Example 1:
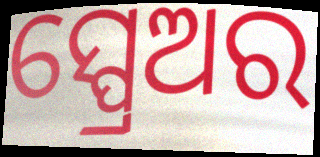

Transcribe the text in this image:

ସ୍ପ୍ରେଅର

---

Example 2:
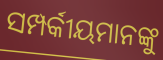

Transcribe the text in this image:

ସମ୍ପର୍କୀୟମାନଙ୍କୁ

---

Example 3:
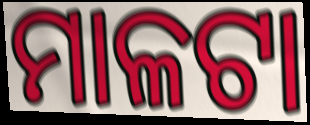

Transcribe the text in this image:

ମାଳଟା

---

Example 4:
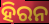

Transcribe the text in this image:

ହିରନ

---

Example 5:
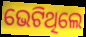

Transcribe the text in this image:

ଭେଟିଥିଲେ